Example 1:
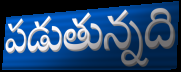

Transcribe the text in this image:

పడుతున్నది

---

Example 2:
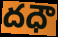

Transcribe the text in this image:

దధౌ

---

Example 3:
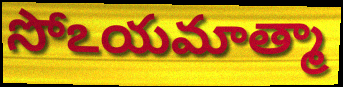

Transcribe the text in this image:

సోఽయమాత్మా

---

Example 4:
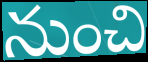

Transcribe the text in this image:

నుంచి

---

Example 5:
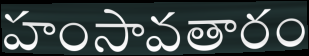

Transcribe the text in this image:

హంసావతారం